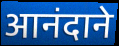
आनंदाने